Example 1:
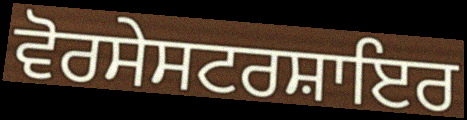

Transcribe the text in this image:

ਵੋਰਸੇਸਟਰਸ਼ਾਇਰ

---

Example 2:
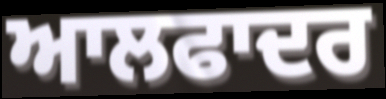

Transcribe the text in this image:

ਆਲਫਾਦਰ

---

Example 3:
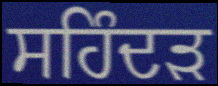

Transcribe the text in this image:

ਸਹਿੰਦੜ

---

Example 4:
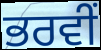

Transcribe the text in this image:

ਭਰਵੀਂ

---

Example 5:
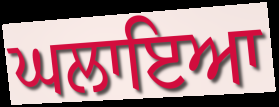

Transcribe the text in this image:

ਘਲਾਇਆ